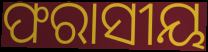
ଫରାସୀୟ